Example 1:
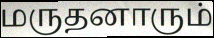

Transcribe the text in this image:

மருதனாரும்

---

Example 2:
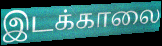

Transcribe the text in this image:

இடக்காலை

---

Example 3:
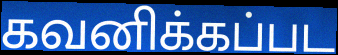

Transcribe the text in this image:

கவனிக்கப்பட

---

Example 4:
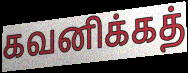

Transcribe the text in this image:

கவனிக்கத்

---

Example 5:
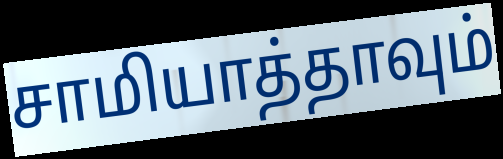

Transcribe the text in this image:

சாமியாத்தாவும்